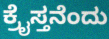
ಕ್ರೈಸ್ತನೆಂದು